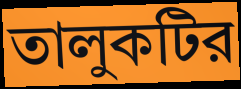
তালুকটির